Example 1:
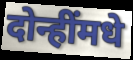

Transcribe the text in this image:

दोन्हींमधे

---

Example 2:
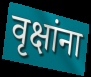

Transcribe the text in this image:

वृक्षांना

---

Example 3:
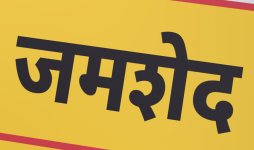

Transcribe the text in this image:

जमशेद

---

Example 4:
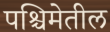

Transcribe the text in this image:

पश्चिमेतील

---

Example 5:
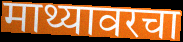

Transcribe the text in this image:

माथ्यावरचा